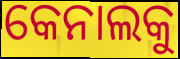
କେନାଲକୁ